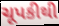
ચૂપકીથી